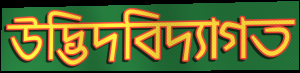
উদ্ভিদবিদ্যাগত